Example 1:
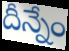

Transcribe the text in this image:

దీన్నేం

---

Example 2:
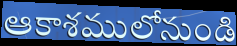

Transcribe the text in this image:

ఆకాశములోనుండి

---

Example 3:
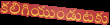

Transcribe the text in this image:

కలిగియుండుటకు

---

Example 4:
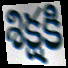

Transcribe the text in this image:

శిక్షకి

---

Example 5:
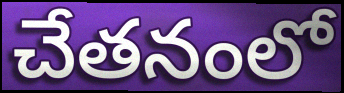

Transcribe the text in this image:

చేతనంలో